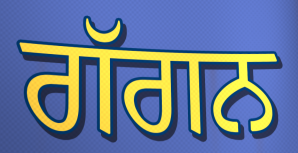
ਗੱਗਨ